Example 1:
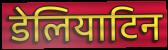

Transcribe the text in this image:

डेलियाटिन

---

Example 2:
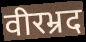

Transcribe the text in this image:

वीरभ्रद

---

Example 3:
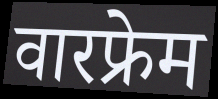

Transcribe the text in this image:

वारफ्रेम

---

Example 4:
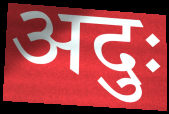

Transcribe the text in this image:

अदुः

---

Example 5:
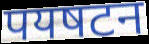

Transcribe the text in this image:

पयषटन